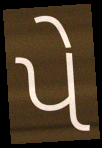
પે